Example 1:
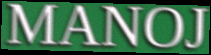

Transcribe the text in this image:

MANOJ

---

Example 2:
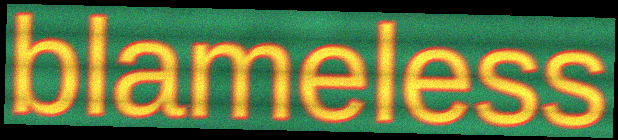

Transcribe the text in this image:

blameless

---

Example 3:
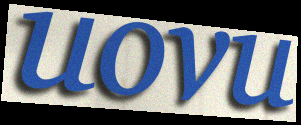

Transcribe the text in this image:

uovu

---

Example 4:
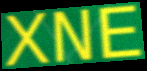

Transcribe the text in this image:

XNE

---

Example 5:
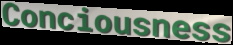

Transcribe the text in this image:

Conciousness